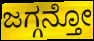
ಜಗ್ಗನ್ತೋ